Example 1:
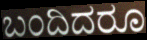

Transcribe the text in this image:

ಬಂದಿದರೂ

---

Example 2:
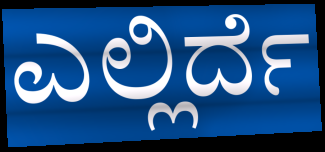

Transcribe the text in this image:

ಎಲ್ಲಿರ್ದೆ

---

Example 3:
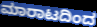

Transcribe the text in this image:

ಮಾರಾಟದಿಂದ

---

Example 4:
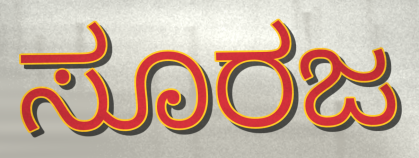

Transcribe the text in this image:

ಸೂರಜ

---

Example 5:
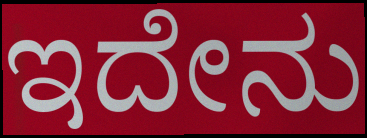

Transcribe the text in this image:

ಇದೇನು